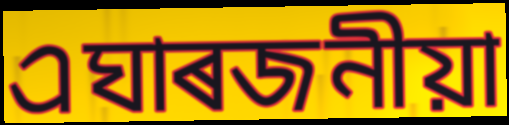
এঘাৰজনীয়া